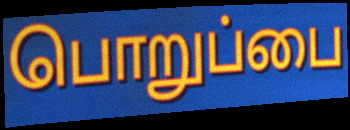
பொறுப்பை